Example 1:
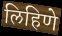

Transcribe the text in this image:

लिहिणे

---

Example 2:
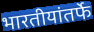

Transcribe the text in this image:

भारतीयांतर्फे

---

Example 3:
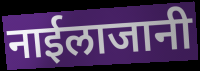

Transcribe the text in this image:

नाईलाजानी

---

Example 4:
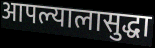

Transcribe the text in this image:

आपल्यालासुद्धा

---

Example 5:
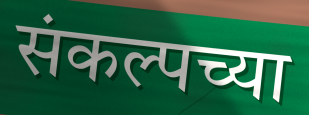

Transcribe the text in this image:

संकल्पच्या